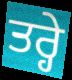
ਤਰ੍ਹੇ